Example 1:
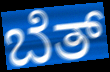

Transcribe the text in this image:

ಬೆತ್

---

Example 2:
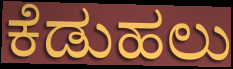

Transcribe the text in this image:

ಕೆಡುಹಲು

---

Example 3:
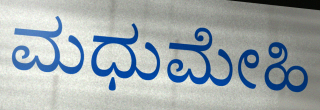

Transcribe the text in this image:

ಮಧುಮೇಹಿ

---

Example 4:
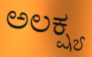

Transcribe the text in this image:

ಅಲಕ್ಷ್ಯ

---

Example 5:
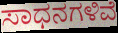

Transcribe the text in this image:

ಸಾಧನಗಳಿವೆ